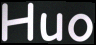
Huo